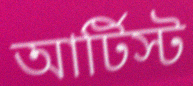
আর্টিস্ট